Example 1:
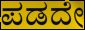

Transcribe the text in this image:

ಪಡದೇ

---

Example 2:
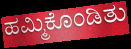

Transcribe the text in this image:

ಹಮ್ಮಿಕೊಂಡಿತು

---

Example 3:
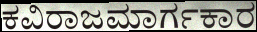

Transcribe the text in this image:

ಕವಿರಾಜಮಾರ್ಗಕಾರ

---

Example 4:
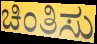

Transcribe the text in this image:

ಚಿಂತಿಸು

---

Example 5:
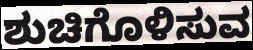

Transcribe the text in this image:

ಶುಚಿಗೊಳಿಸುವ